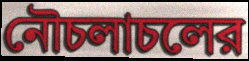
নৌচলাচলের